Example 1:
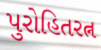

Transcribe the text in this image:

પુરોહિતરત્ન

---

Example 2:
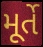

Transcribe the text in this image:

મૂર્તે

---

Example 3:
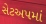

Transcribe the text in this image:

સેટઅપમાં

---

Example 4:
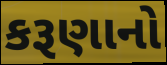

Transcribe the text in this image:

કરૂણાનો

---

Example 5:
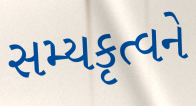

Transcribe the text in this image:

સમ્યકૃત્વને